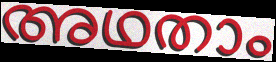
അഥതാം